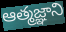
ఆత్మజ్ఞాని